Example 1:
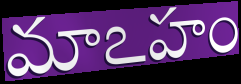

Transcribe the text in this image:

మాఽహం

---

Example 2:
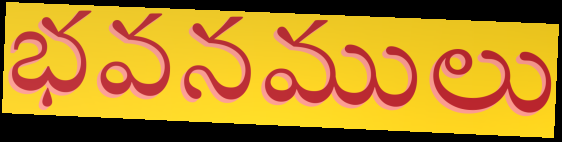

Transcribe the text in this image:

భవనములు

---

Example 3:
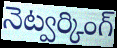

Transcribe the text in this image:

నెట్వర్కింగ్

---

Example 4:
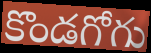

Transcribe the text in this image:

కొండగోగు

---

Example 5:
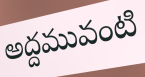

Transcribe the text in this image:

అద్దమువంటి